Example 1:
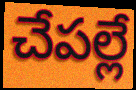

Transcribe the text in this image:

చేపల్లే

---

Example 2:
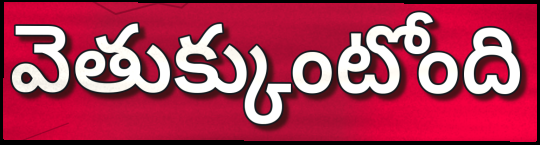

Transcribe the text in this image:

వెతుక్కుంటోంది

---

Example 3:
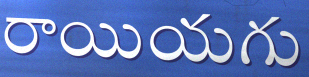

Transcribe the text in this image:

రాయియగు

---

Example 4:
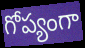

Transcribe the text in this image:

గోప్యంగా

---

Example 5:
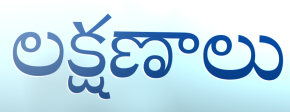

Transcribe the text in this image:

లక్షణాలు